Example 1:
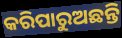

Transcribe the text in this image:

କରିପାରୁଅଛନ୍ତି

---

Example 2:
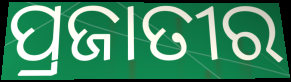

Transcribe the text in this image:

ପ୍ରଜାତୀର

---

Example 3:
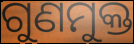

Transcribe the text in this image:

ଗୁଣମୁକ୍ତ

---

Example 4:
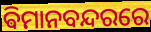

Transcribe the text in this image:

ଵିମାନବନ୍ଦରରେ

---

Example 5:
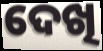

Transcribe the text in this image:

ଦେଖି